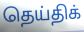
தெய்திக்